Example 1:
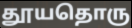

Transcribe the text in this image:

தூயதொரு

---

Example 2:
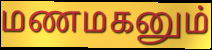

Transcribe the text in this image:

மணமகனும்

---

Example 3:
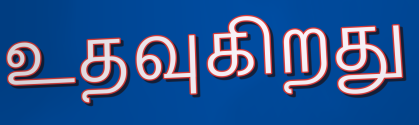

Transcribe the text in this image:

உதவுகிறது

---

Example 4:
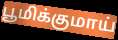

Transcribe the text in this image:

பூமிக்குமாய்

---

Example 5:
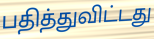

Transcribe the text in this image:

பதித்துவிட்டது